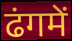
ढंगमें